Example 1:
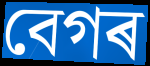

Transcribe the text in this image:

বেগৰ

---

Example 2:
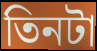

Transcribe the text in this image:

তিনটা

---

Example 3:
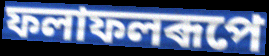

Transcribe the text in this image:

ফলাফলৰূপে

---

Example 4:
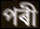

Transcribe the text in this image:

পৰী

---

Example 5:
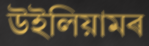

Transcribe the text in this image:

উইলিয়ামৰ